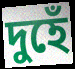
দুহেঁ